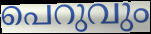
പെറുവും